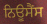
ਨਿਊਸੈਂਸ